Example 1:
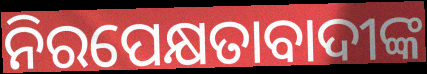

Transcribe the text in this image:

ନିରପେକ୍ଷତାବାଦୀଙ୍କ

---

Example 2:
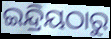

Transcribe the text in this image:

ଇନ୍ଦ୍ରିୟଠାରୁ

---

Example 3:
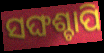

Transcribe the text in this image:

ସଙ୍ଘଶ୍ଚାପି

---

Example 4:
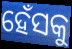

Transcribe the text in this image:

ହେଁସକୁ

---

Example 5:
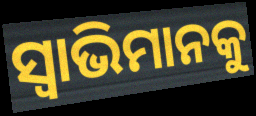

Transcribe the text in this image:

ସ୍ୱାଭିମାନକୁ